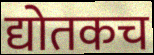
द्योतकच